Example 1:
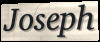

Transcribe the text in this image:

Joseph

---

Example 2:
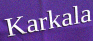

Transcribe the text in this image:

Karkala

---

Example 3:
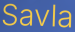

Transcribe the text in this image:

Savla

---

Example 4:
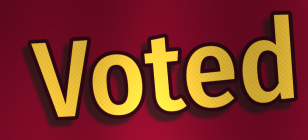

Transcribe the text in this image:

Voted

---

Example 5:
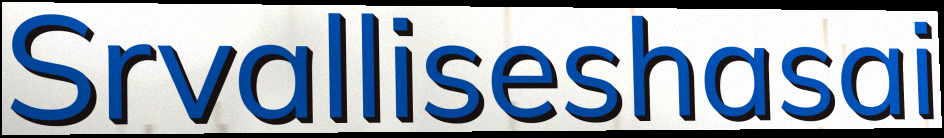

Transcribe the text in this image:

Srvalliseshasai